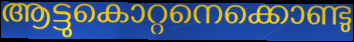
ആട്ടുകൊറ്റനെക്കൊണ്ടു